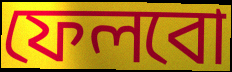
ফেলবো